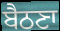
ਬੈਠਣਾ